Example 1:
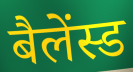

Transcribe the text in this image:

बैलेंस्ड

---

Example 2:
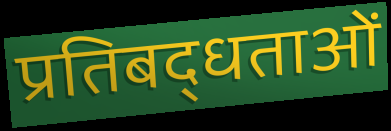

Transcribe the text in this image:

प्रतिबद्धताओं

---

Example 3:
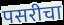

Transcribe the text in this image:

पसरीचा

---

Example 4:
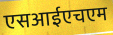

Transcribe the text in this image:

एसआईएचएम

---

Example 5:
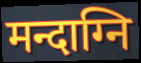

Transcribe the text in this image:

मन्दाग्नि